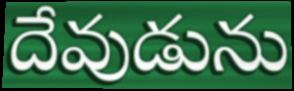
దేవుడును